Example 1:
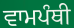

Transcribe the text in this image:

ਵਾਮਪੰਥੀ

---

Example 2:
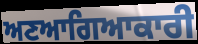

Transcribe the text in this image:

ਅਣਆਗਿਆਕਾਰੀ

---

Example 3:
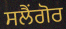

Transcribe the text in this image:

ਸਲੈਂਗੋਰ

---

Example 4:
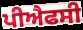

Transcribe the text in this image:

ਪੀਐਫਸੀ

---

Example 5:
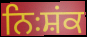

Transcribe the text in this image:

ਨਿਃਸ਼ਂਕ